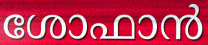
ശോഫാൻ